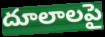
దూలాలపై